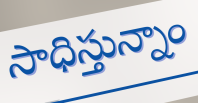
సాధిస్తున్నాం